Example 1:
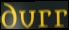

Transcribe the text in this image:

durr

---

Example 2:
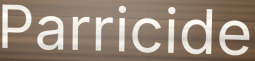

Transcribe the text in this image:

Parricide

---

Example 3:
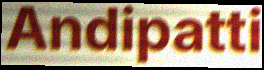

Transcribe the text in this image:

Andipatti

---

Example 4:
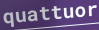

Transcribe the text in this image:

quattuor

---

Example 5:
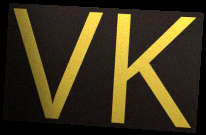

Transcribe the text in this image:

VK